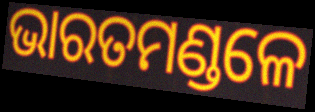
ଭାରତମଣ୍ଡଳେ